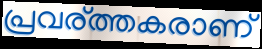
പ്രവര്ത്തകരാണ്